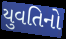
યુવતિનો